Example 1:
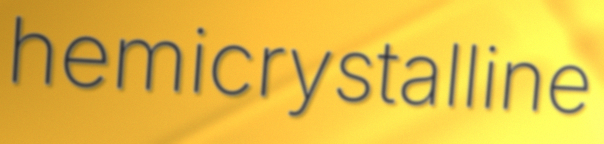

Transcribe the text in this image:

hemicrystalline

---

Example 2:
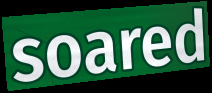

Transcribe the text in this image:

soared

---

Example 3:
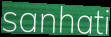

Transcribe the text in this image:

sanhati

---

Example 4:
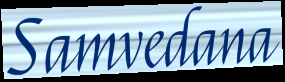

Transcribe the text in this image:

Samvedana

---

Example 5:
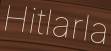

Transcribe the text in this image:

Hitlarla